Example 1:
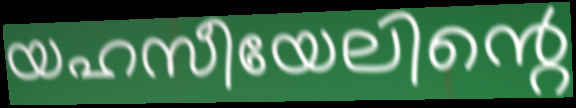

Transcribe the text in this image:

യഹസീയേലിന്റെ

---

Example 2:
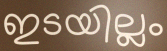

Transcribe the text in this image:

ഇടയില്ലം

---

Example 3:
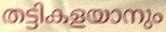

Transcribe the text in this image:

തട്ടികളയാനും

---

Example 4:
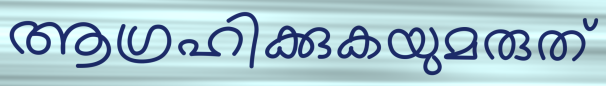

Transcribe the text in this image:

ആഗ്രഹിക്കുകയുമരുത്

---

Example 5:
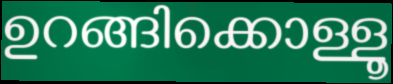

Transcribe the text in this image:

ഉറങ്ങിക്കൊള്ളൂ